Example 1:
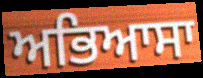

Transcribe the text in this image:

ਅਭਿਆਸਾ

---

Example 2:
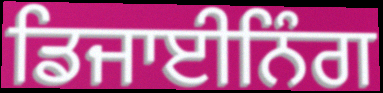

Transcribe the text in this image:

ਡਿਜਾਈਨਿੰਗ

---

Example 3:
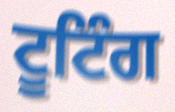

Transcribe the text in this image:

ਟੂਟਿੰਗ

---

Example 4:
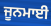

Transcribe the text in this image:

ਜੂਨਮਾਈ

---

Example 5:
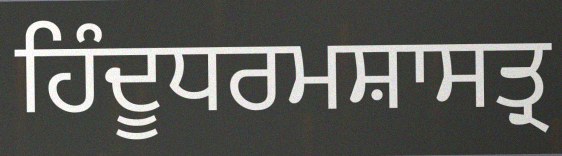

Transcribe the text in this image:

ਹਿੰਦੂਧਰਮਸ਼ਾਸਤ੍ਰ